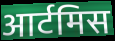
आर्टमिस